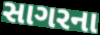
સાગરના